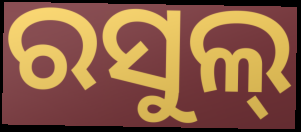
ରସୁଲ୍